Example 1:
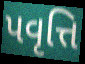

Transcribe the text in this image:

પવૃત્તિ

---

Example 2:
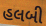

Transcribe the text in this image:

હલબી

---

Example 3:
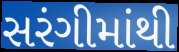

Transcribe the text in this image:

સરંગીમાંથી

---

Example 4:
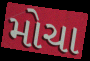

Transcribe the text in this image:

મોચા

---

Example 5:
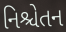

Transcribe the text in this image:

નિશ્ચેતન